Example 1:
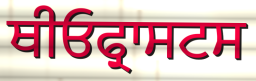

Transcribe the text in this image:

ਥੀਓਫ੍ਰਾਸਟਸ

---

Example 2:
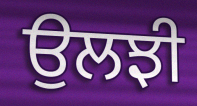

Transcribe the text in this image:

ਉਲਝੀ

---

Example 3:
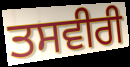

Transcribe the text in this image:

ਤਸਵੀਰੀ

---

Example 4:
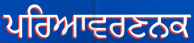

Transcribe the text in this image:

ਪਰਿਆਵਰਣਨਕ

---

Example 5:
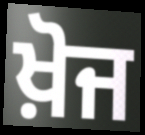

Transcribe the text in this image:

ਖ਼ੋਜ